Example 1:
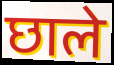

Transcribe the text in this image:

छाले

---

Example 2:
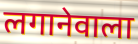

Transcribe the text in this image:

लगानेवाला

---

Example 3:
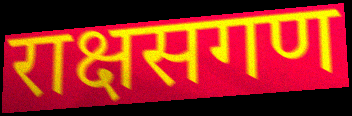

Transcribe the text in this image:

राक्षसगण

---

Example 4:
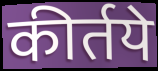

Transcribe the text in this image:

कीर्तये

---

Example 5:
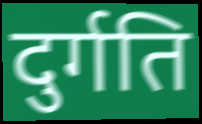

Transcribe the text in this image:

दुर्गति